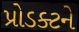
પ્રોડક્ટને